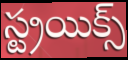
స్ట్రయిక్స్